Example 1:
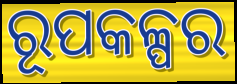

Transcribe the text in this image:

ରୂପକଳ୍ପର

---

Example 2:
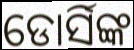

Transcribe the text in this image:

ଡୋର୍ସିଙ୍କ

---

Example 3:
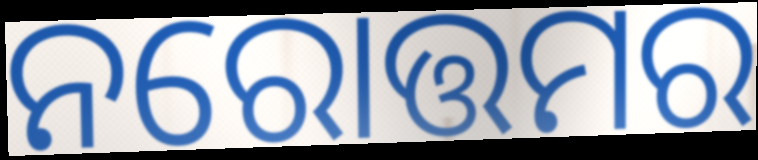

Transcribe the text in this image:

ନରୋତ୍ତମର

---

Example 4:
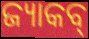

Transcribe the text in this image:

ଜ୍ୟାକବ୍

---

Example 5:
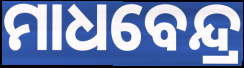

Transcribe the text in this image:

ମାଧବେନ୍ଦ୍ର